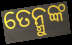
ତେନ୍ମୁଙ୍କ